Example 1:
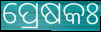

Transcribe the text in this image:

ପ୍ରେଷକଃ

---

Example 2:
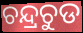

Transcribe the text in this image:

ଚନ୍ଦ୍ରଚୁଡ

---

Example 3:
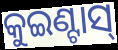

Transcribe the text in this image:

କୁଇଣ୍ଟାସ୍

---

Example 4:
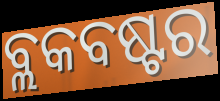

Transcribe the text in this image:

ବ୍ଲକବଷ୍ଟର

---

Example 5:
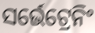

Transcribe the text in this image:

ସର୍ଭେଟ୍ରେନିଂ